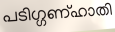
പടിഗ്ഗണ്ഹാതി